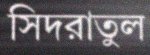
সিদরাতুল